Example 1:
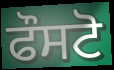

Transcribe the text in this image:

ਫੌਸਟੋ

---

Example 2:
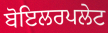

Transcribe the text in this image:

ਬੋਇਲਰਪਲੇਟ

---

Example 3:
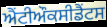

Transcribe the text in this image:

ਐਂਟੀਔਕਸੀਡੈਂਟਸ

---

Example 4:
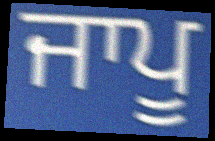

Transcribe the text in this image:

ਜਾਪੂ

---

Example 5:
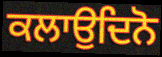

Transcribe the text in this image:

ਕਲਾਉਦਿਨੋ